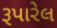
રૂપારેલ